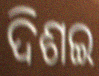
ଦିଶଇ